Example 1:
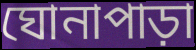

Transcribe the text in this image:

ঘোনাপাড়া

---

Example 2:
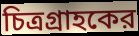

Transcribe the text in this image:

চিত্রগ্রাহকের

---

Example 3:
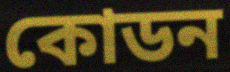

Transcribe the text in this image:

কোডন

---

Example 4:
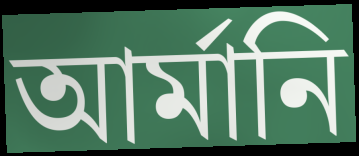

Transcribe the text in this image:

আর্মানি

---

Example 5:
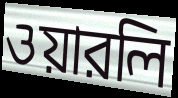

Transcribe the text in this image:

ওয়ারলি